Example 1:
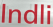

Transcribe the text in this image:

Indli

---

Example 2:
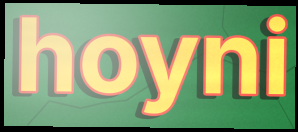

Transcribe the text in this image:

hoyni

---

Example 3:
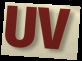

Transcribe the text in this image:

UV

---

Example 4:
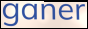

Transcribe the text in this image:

ganer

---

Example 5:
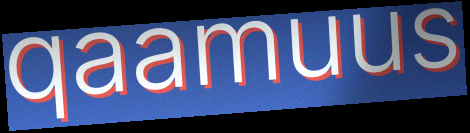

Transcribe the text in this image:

qaamuus